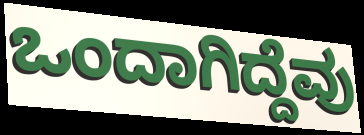
ಒಂದಾಗಿದ್ದೆವು